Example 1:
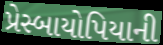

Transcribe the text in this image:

પ્રેસ્બાયોપિયાની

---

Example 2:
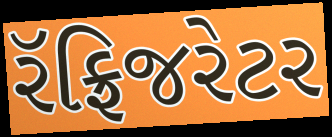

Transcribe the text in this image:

રૅફ્રિજરેટર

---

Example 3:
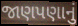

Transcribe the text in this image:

જાણપણાનું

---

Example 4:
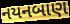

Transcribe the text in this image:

નયનબાણ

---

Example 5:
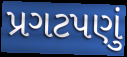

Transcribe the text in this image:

પ્રગટપણું